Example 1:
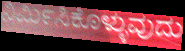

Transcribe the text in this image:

ನಿರ್ಮಿಸಿಕೊಳ್ಳುವುದು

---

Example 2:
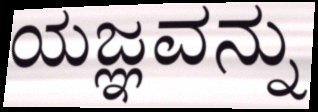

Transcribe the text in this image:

ಯಜ್ಞವನ್ನು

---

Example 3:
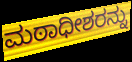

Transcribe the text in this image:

ಮಠಾಧೀಶರನ್ನು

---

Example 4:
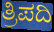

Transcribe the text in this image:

ತ್ರಿಪದಿ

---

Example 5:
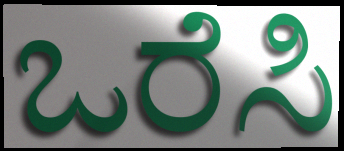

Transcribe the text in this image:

ಒರೆಸಿ